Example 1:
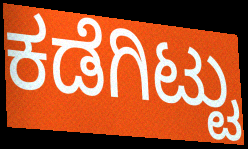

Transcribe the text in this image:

ಕಡೆಗಿಟ್ಟು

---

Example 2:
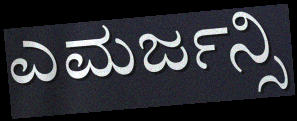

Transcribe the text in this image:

ಎಮರ್ಜನ್ಸಿ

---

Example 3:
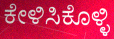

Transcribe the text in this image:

ಕೇಳಿಸಿಕೊಳ್ಳಿ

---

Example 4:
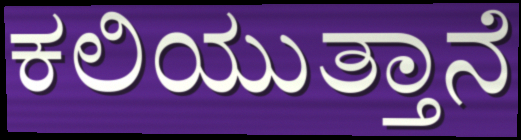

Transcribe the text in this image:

ಕಲಿಯುತ್ತಾನೆ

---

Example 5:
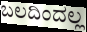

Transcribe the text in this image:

ಬಲದಿಂದಲ್ಲ